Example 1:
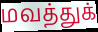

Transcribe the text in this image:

மவத்துக்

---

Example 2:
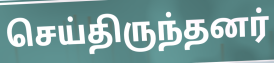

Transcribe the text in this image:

செய்திருந்தனர்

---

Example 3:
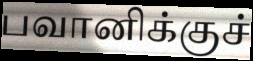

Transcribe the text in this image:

பவானிக்குச்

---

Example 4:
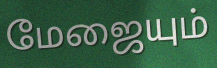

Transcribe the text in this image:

மேஜையும்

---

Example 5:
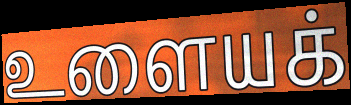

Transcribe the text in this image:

உளையக்